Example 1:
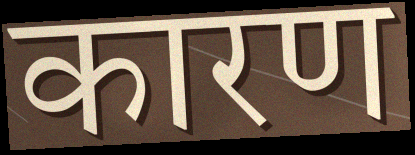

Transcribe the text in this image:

कारण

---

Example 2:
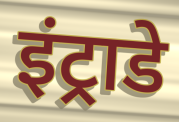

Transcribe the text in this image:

इंट्राडे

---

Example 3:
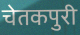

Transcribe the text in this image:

चेतकपुरी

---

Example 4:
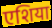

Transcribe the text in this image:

एशिया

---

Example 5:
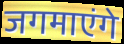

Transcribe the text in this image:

जगमाएंगे